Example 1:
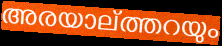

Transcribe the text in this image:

അരയാല്ത്തറയും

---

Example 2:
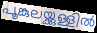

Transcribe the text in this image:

പൂങ്കുലയ്ക്കുള്ളിൽ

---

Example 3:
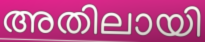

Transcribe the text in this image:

അതിലായി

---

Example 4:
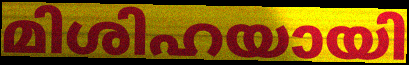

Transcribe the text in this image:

മിശിഹയായി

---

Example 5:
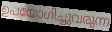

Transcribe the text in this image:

ഉപയോഗിച്ചുവരുന്ന